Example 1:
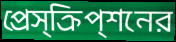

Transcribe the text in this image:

প্রেস্‌ক্রিপ্‌শনের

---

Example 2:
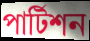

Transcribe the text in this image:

পার্টিশন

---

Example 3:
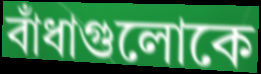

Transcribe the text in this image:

বাঁধাগুলোকে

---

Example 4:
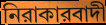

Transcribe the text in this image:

নিরাকারবাদী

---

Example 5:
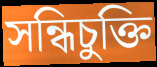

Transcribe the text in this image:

সন্ধিচুক্তি